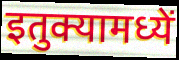
इतुक्यामध्यें